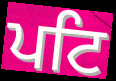
ਪਟਿ